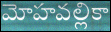
మోహవల్లికా